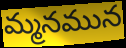
మ్మనమున